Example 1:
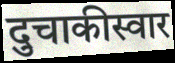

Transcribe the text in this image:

दुचाकीस्वार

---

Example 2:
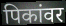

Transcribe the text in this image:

पिकांवर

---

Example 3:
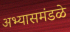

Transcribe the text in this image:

अभ्यासमंडळे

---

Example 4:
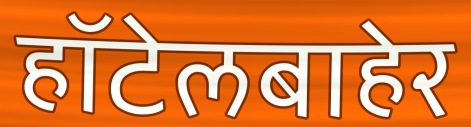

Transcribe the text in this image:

हॉटेलबाहेर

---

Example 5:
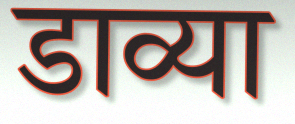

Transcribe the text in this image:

डाव्या